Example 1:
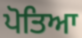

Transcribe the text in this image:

ਪੋਤਿਆ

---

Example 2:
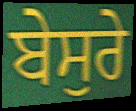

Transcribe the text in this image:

ਬੇਸੁਰੇ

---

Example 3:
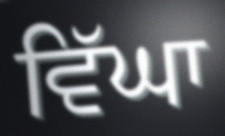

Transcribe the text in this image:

ਵਿੱਘਾ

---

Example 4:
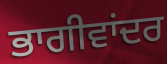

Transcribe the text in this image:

ਭਾਗੀਵਾਂਦਰ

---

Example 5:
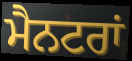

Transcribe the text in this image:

ਮੈਨਟਰਾਂ